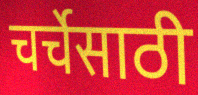
चर्चेसाठी